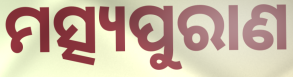
ମତ୍ସ୍ୟପୁରାଣ